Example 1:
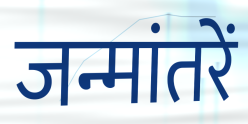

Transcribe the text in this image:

जन्मांतरें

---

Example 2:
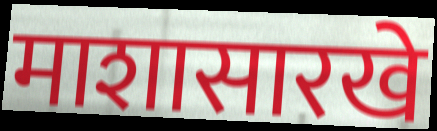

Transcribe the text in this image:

माशासारखे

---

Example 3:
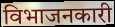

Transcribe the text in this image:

विभाजनकारी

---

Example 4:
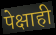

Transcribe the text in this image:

पेक्षाही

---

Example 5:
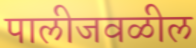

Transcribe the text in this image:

पालीजवळील